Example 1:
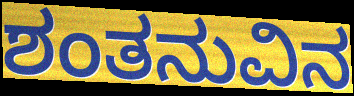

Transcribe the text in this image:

ಶಂತನುವಿನ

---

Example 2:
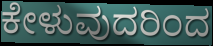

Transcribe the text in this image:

ಕೇಳುವುದರಿಂದ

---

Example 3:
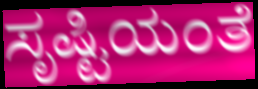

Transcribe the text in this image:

ಸೃಷ್ಟಿಯಂತೆ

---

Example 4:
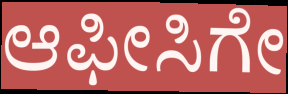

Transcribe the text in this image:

ಆಫೀಸಿಗೇ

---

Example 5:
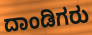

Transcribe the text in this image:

ದಾಂಡಿಗರು